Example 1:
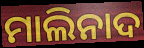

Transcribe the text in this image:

ମାଲିନାଦ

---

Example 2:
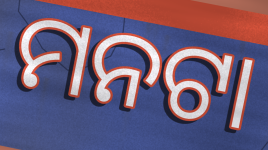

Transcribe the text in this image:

ମନଟା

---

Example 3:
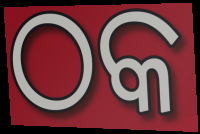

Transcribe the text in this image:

ଠକ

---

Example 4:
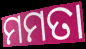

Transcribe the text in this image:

ମମତା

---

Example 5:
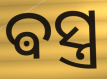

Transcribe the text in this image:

ଵସ୍ତ୍ର